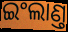
ଇଂଲାଣ୍ତ